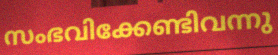
സംഭവിക്കേണ്ടിവന്നു